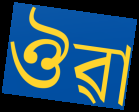
ঔৱা